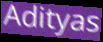
Adityas